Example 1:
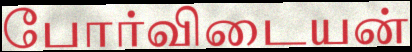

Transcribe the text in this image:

போர்விடையன்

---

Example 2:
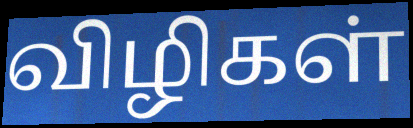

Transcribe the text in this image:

விழிகள்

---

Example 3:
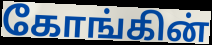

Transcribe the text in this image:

கோங்கின்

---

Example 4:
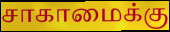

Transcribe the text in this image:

சாகாமைக்கு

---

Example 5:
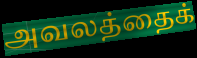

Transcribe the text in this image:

அவலத்தைக்